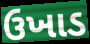
ઉખાડ